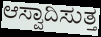
ಆಸ್ವಾದಿಸುತ್ತ